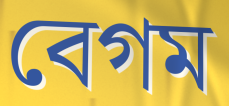
বেগম